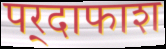
पर्दाफाश